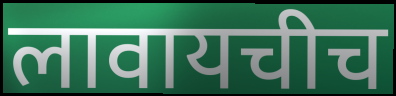
लावायचीच